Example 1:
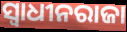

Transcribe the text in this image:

ସ୍ୱାଧୀନରାଜା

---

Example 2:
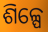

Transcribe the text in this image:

ଶିଳ୍ପେ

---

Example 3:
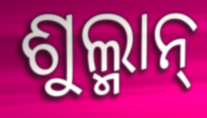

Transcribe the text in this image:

ଶୁଲ୍ମାନ୍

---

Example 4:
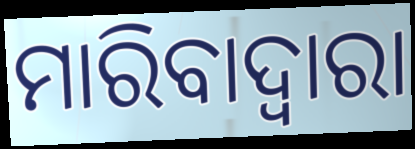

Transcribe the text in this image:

ମାରିବାଦ୍ୱାରା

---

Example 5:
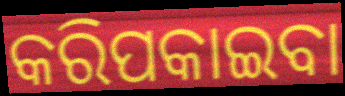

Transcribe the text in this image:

କରିପକାଇବା